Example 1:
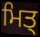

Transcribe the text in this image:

ਮਿਤ੍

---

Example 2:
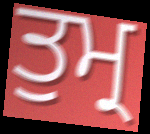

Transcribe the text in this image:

ਤੁਮ੍ਰ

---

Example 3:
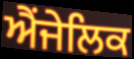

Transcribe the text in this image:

ਐਂਜੇਲਿਕ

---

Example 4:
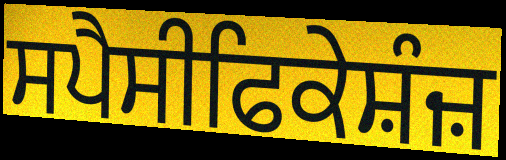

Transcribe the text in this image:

ਸਪੈਸੀਫਿਕੇਸ਼ੰਜ਼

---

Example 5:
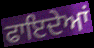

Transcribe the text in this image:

ਫਾਇਦੇਆਂ